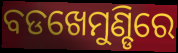
ବଡଖେମୁଣ୍ଡିରେ